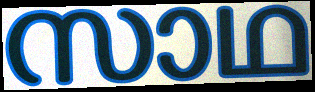
സാഥ